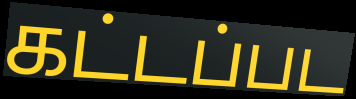
கட்டப்பட